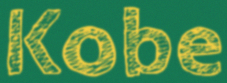
Kobe